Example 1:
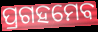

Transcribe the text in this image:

ପ୍ରଗହମେବ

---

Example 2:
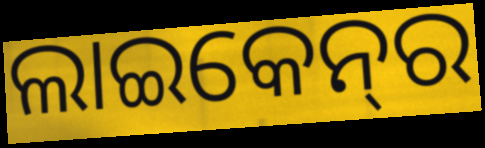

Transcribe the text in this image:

ଲାଇକେନ୍‌ର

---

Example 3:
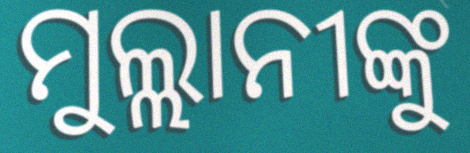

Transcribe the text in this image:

ମୁଲ୍ଲାନୀଙ୍କୁ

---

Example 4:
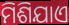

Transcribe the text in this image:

ମିଶିଯାଏ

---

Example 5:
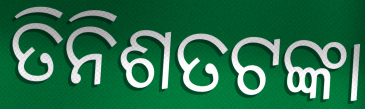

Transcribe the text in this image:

ତିନିଶତଟଙ୍କା